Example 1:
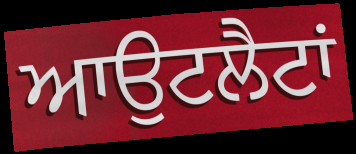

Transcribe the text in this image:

ਆਉਟਲੈਟਾਂ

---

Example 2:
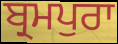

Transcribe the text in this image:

ਬ੍ਰਮਪੁਰਾ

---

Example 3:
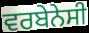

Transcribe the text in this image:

ਵਰਬੇਨੇਸੀ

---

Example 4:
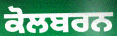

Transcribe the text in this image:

ਕੋਲਬਰਨ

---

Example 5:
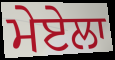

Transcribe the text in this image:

ਮੇਏਲਾ